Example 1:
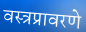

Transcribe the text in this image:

वस्त्रप्रावरणे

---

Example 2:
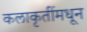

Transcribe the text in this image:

कलाकृतींमधून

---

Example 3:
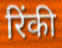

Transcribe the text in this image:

रिंकी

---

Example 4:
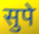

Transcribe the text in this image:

सुपे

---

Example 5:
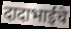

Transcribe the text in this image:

दादाभाईंचे